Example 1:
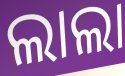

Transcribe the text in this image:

ଲାଲା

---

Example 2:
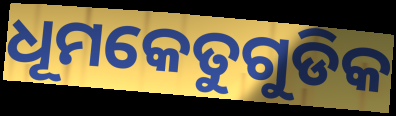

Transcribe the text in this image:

ଧୂମକେତୁଗୁଡିକ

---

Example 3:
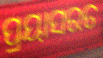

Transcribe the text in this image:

ପ୍ରୟାସରତ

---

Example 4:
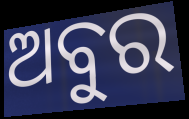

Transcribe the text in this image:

ଅବୁର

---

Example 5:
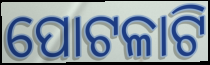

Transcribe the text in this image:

ପୋଟଳାଟି